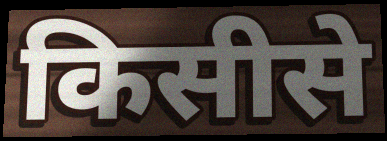
किसीसे